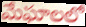
మేఘాలలో